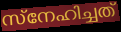
സ്‌നേഹിച്ചത്